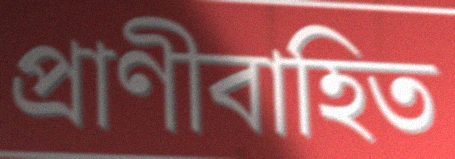
প্রাণীবাহিত